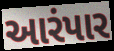
આરંપાર